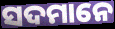
ସଦମାନେ